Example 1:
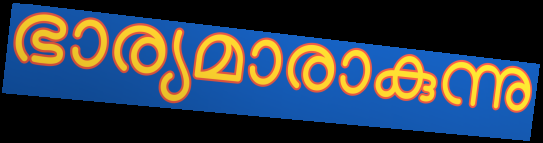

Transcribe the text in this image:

ഭാര്യമാരാകുന്നു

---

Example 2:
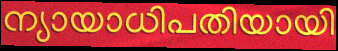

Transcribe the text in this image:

ന്യായാധിപതിയായി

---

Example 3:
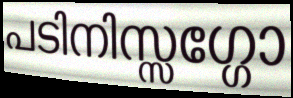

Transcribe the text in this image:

പടിനിസ്സഗ്ഗോ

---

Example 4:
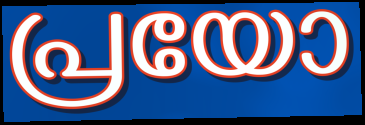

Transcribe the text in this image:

പ്രയോ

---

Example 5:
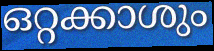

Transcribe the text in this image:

ഒറ്റക്കാശും